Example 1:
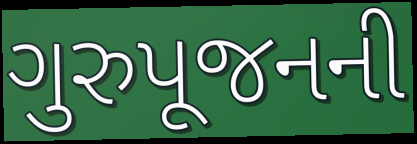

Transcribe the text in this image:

ગુરુપૂજનની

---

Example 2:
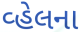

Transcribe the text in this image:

વ્હેલના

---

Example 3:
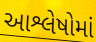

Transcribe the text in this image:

આશ્લેષોમાં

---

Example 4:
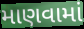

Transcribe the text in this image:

માણવામાં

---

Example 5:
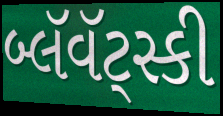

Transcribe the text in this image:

બ્લૅવૅટ્સ્કી